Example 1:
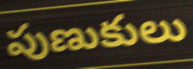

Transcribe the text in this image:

పుణుకులు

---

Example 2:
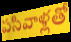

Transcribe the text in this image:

పసివాళ్లతో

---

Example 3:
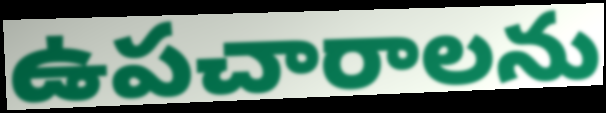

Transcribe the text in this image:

ఉపచారాలను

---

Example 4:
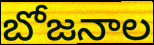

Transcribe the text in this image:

బోజనాల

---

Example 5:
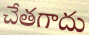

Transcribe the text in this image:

చేతగాదు